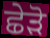
ਛੇੜੋ